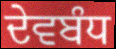
ਦੇਵਬੰਧ